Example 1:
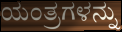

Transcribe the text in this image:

ಯಂತ್ರಗಳನ್ನು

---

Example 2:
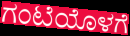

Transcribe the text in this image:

ಗಂಟೆಯೊಳಗೆ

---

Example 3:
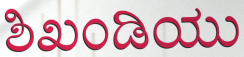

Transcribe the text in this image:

ಶಿಖಂಡಿಯು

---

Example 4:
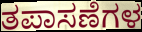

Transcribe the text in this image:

ತಪಾಸಣೆಗಳ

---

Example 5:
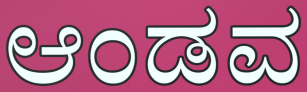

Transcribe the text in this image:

ಆಂಡವ